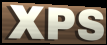
XPS